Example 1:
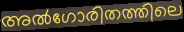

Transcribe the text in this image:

അൽഗോരിതത്തിലെ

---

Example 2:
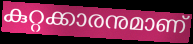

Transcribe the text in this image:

കുറ്റക്കാരനുമാണ്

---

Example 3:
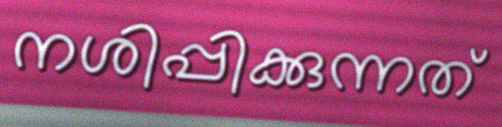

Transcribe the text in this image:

നശിപ്പിക്കുന്നത്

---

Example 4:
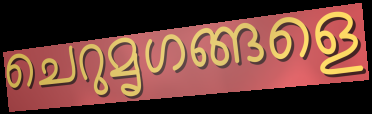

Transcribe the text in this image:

ചെറുമൃഗങ്ങളെ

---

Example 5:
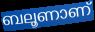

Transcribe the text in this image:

ബലൂണാണ്